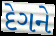
દેગને